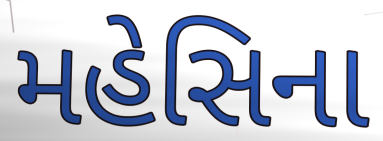
મહેસિના